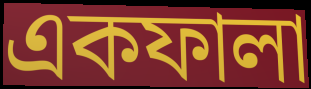
একফালা